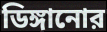
ডিঙ্গানোর